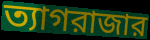
ত্যাগরাজার